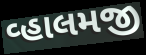
વ્હાલમજી